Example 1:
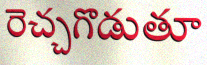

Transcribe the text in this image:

రెచ్చగొడుతూ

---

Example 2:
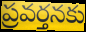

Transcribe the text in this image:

ప్రవర్తనకు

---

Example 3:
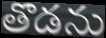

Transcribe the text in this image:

తొడను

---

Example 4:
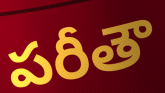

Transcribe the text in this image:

పరీతౌ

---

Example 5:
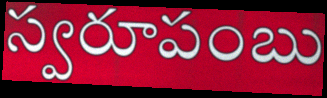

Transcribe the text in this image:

స్వరూపంబు